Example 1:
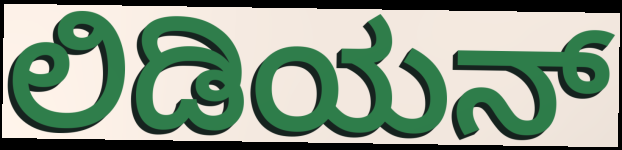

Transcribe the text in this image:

ಲಿಡಿಯನ್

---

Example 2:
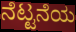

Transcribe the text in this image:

ನೆಟ್ಟನೆಯ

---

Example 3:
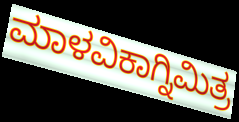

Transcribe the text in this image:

ಮಾಳವಿಕಾಗ್ನಿಮಿತ್ರ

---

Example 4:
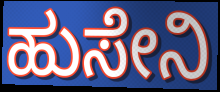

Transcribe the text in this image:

ಹುಸೇನಿ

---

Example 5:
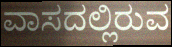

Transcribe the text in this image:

ವಾಸದಲ್ಲಿರುವ